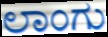
ಲಾಂಗು